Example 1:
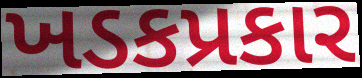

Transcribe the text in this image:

ખડકપ્રકાર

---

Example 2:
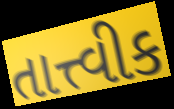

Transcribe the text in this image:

તાત્ત્વીક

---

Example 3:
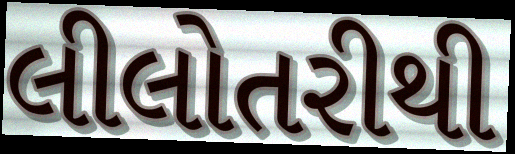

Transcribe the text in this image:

લીલોતરીથી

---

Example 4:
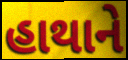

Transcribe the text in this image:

હાથાને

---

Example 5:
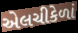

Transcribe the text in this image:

એલચીકેળાં